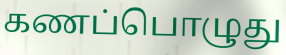
கணப்பொழுது